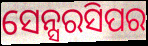
ସେନ୍ସରସିପର